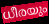
ധീരയും